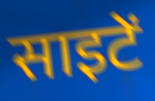
साइटें